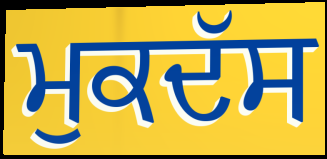
ਮੁਕਦੱਸ